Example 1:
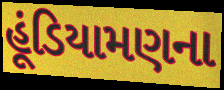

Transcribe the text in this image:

હૂંડિયામણના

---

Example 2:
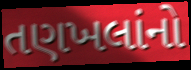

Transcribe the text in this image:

તણખલાંનો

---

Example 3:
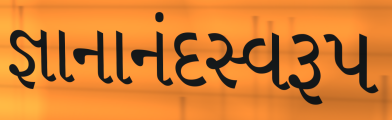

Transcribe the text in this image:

જ્ઞાનાનંદસ્વરૂપ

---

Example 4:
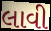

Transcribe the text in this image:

લાવી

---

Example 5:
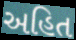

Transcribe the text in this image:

અહિત